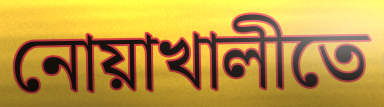
নোয়াখালীতে